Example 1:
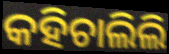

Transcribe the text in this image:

କହିଚାଲିଲି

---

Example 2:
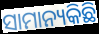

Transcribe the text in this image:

ସାମାନ୍ୟକିଛି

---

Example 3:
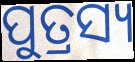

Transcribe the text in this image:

ପୁତ୍ରସ୍ୟ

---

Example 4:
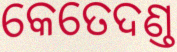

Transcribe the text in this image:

କେତେଦଣ୍ଡ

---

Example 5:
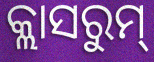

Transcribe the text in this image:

କ୍ଲାସରୁମ୍